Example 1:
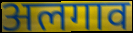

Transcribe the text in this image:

अलगाव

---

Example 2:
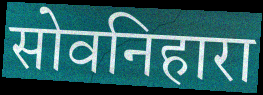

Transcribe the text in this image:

सोवनिहारा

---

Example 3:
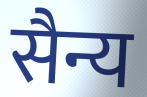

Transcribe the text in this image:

सैन्य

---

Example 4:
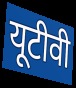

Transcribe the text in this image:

यूटीवी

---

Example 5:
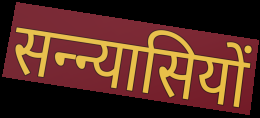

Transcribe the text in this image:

सन्न्यासियों